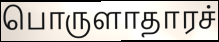
பொருளாதாரச்